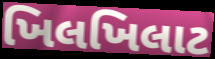
ખિલખિલાટ